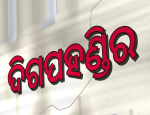
ଦିଗପହଣ୍ଡିର